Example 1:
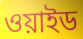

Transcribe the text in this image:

ওয়াইড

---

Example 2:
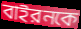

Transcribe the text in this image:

বাইরনকে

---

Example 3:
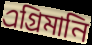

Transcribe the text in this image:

এগ্রিমানি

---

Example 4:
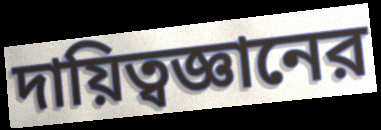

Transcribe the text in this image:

দায়িত্বজ্ঞানের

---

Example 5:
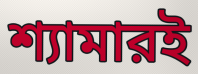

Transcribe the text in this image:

শ্যামারই